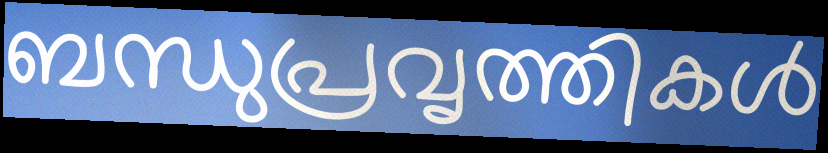
ബന്ധുപ്രവൃത്തികൾ